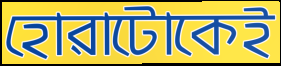
হোৱাটোকেই